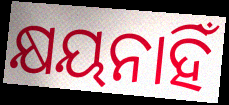
କ୍ଷୟନାହିଁ